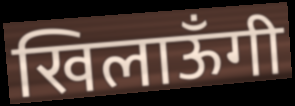
खिलाऊँगी